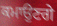
ਕਮਾਉਣਗੇ